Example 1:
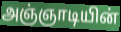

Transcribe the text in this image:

அஞ்ஞாடியின்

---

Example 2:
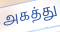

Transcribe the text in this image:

அகத்து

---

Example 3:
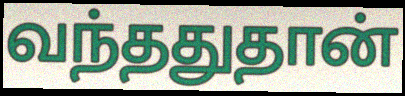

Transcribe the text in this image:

வந்ததுதான்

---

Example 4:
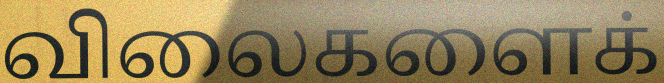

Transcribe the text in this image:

விலைகளைக்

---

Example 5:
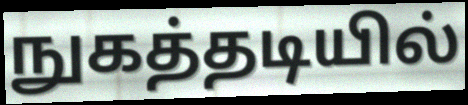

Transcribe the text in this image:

நுகத்தடியில்